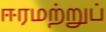
ஈரமற்றுப்